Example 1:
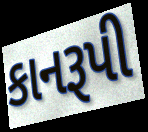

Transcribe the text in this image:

કાનરૂપી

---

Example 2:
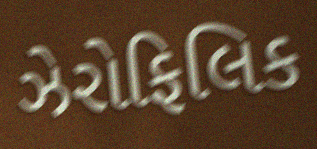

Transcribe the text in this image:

ઝેરોફિલિક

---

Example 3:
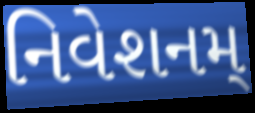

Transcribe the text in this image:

નિવેશનમ્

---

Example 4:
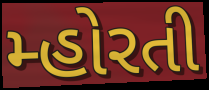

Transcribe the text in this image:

મ્હોરતી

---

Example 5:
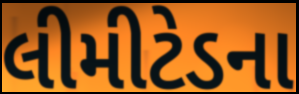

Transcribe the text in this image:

લીમીટેડના